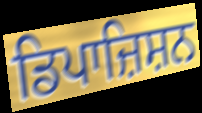
ਡਿਪਾਜ਼ਿਸ਼ਨ